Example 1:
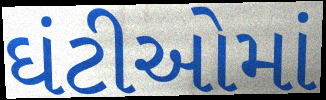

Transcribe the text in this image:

ઘંટીઓમાં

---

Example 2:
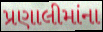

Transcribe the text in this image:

પ્રણાલીમાંના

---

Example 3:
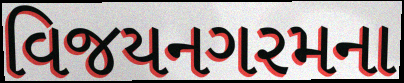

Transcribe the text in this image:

વિજયનગરમના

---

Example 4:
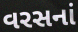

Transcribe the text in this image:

વરસનાં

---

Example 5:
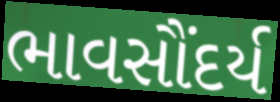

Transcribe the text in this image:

ભાવસૌંદર્ય